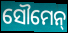
ସୌମେନ୍